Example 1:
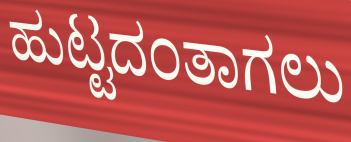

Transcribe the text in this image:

ಹುಟ್ಟದಂತಾಗಲು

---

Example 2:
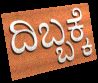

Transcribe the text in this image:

ದಿಬ್ಬಕ್ಕೆ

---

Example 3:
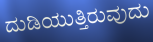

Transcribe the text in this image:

ದುಡಿಯುತ್ತಿರುವುದು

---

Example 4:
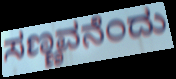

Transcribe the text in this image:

ಸಣ್ಣವನೆಂದು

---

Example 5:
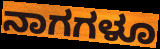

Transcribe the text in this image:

ನಾಗಗಳೂ